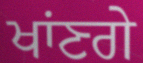
ਖਾਂਣਗੇ